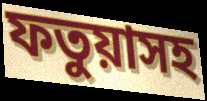
ফতুয়াসহ